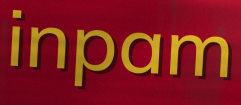
inpam